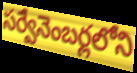
సర్వేనెంబర్లలోని